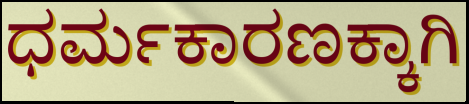
ಧರ್ಮಕಾರಣಕ್ಕಾಗಿ